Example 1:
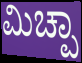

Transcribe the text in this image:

ಮಿಚ್ಪಾ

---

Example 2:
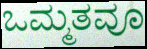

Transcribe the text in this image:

ಒಮ್ಮತವೂ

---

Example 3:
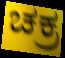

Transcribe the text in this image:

ಚಕ್ರ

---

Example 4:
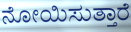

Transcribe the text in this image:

ನೋಯಿಸುತ್ತಾರೆ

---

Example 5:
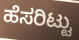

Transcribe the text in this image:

ಹೆಸರಿಟ್ಟು